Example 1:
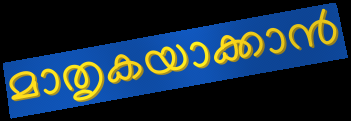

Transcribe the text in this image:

മാതൃകയാക്കാൻ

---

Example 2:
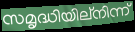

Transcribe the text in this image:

സമൃദ്ധിയില്നിന്ന്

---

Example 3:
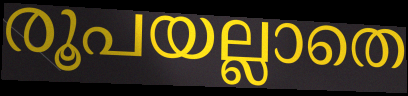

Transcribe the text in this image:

രൂപയല്ലാതെ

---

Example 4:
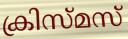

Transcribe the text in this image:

ക്രിസ്മസ്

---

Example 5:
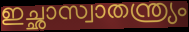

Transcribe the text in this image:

ഇച്ഛാസ്വാതന്ത്ര്യം